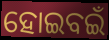
ହୋଇବଇଁ